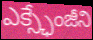
ఎక్స్ఛేంజీని